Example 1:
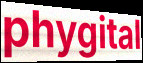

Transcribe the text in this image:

phygital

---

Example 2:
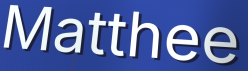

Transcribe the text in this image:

Matthee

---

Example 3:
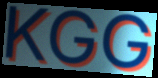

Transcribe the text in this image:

KGG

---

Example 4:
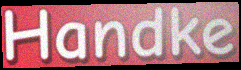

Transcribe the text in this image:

Handke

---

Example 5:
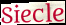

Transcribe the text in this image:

Siecle